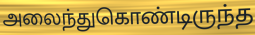
அலைந்துகொண்டிருந்த